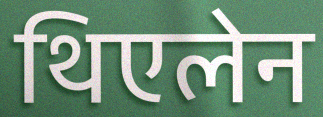
थिएलेन